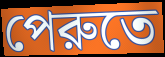
পেরুতে